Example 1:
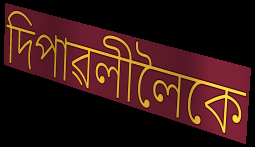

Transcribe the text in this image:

দিপাৱলীলৈকে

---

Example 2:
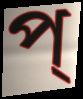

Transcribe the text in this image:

প্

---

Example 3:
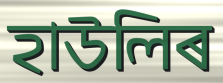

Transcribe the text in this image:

হাউলিৰ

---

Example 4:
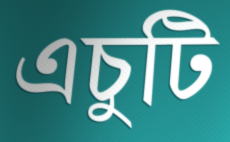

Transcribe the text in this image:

এচুটি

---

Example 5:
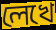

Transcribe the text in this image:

লেখে